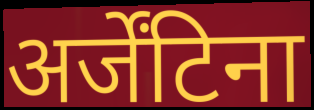
अर्जेंटिना